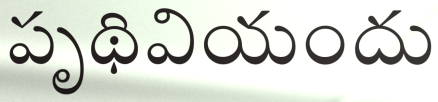
పృథివియందు